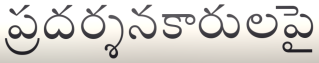
ప్రదర్శనకారులపై